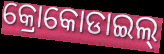
କ୍ରୋକୋଡାଇଲ୍